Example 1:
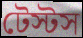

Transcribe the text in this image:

টেস্টস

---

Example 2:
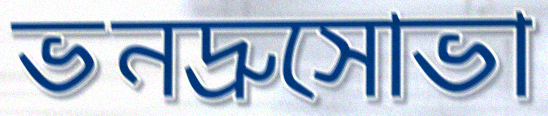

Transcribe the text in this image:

ভনদ্রুসোভা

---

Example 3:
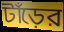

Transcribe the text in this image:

টাঁড়ের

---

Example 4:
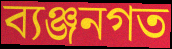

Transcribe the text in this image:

ব্যঞ্জনগত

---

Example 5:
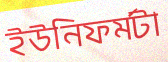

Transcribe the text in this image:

ইউনিফর্মটা